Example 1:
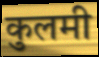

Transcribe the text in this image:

कुलमी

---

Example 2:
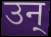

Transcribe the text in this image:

उन्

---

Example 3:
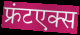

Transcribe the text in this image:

फ्रंटएक्स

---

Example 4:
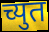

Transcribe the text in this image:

च्‍युत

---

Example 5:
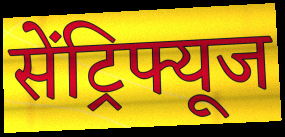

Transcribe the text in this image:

सेंट्रिफ्यूज